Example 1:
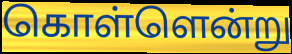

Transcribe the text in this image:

கொள்ளென்று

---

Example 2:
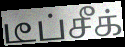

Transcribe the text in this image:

டீப்சீக்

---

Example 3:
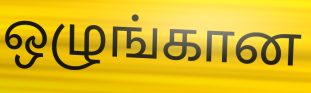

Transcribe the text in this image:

ஒழுங்கான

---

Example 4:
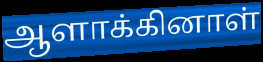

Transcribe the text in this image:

ஆளாக்கினாள்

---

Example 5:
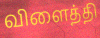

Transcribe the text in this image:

விளைத்தி